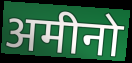
अमीनो